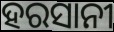
ହରସାନୀ